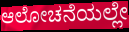
ಆಲೋಚನೆಯಲ್ಲೇ